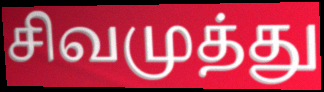
சிவமுத்து